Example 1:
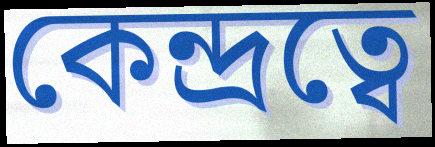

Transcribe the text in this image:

কেন্দ্রত্বে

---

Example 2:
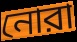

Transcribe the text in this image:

নোরা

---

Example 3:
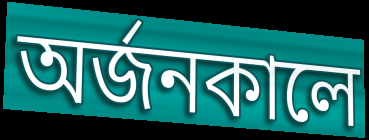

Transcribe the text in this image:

অর্জনকালে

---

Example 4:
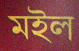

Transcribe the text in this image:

মইল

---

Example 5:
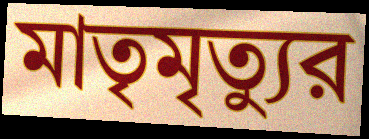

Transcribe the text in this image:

মাতৃমৃত্যুর